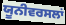
ਯੂਨੀਵਰਸਲਾਂ